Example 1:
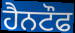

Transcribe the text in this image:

ਹੈਨਟੌਫ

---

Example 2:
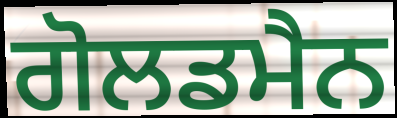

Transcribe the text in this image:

ਗੋਲਡਮੈਨ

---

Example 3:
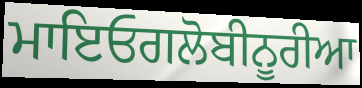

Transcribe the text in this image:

ਮਾਇਓਗਲੋਬੀਨੂਰੀਆ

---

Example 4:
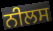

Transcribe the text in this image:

ਨੀਲਸ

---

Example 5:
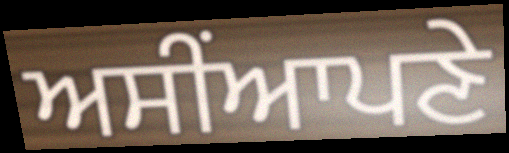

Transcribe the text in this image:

ਅਸੀਂਆਪਣੇ